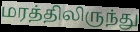
மரத்திலிருந்து